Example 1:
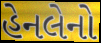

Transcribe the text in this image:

હેનલેનો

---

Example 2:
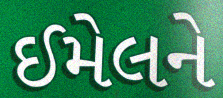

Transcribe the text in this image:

ઈમેલને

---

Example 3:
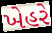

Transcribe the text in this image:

ખેહરે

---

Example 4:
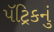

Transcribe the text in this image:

પૅટ્રિકનું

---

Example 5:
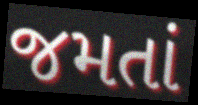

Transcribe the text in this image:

જમતાં